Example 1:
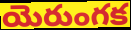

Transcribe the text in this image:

యెరుంగక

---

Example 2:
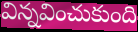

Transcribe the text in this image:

విన్నవించుకుంది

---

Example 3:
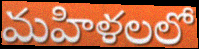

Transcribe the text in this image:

మహిళలలో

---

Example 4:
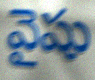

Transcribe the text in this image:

వైషు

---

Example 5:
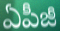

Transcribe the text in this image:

ఏపీజీ